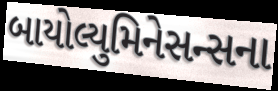
બાયોલ્યુમિનેસન્સના